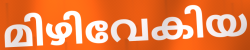
മിഴിവേകിയ